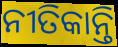
ନୀତିକାନ୍ତି